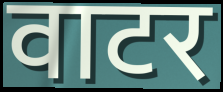
वाटर